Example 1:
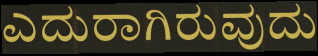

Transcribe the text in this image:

ಎದುರಾಗಿರುವುದು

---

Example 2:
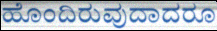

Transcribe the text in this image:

ಹೊಂದಿರುವುದಾದರೂ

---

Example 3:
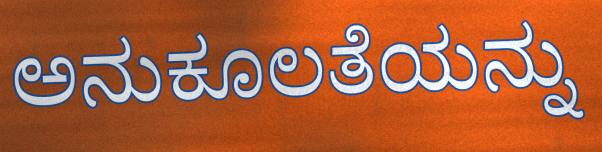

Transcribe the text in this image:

ಅನುಕೂಲತೆಯನ್ನು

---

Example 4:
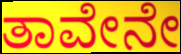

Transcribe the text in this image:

ತಾವೇನೇ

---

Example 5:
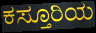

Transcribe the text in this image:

ಕಸ್ತೂರಿಯ